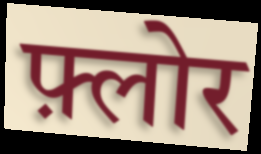
फ़्लोर